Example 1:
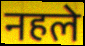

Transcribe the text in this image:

नहले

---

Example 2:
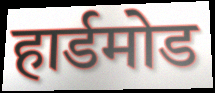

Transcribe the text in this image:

हार्डमोड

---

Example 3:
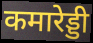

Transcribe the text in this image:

कमारेड्डी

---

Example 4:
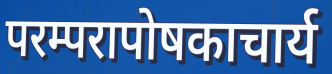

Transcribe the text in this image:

परम्परापोषकाचार्य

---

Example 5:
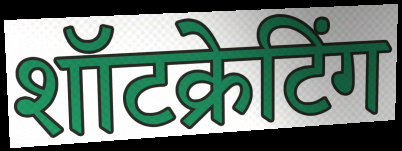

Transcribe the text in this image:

शॉटक्रेटिंग